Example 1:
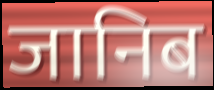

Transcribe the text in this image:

जानिब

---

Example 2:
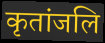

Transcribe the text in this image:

कृतांजलि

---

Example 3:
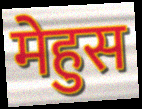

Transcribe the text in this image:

मेहुस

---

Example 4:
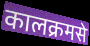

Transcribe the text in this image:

कालक्रमसे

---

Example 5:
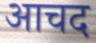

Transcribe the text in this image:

आचद